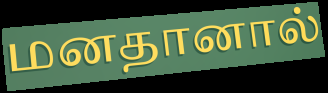
மனதானால்